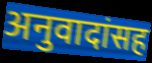
अनुवादांसह